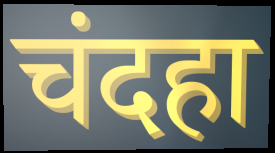
चंदहा